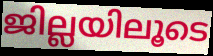
ജില്ലയിലൂടെ